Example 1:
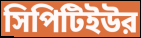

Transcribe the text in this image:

সিপিটিইউর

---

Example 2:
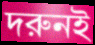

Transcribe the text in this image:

দরুনই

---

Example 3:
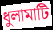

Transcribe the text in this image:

ধুলামাটি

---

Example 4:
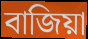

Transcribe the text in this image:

বাজিয়া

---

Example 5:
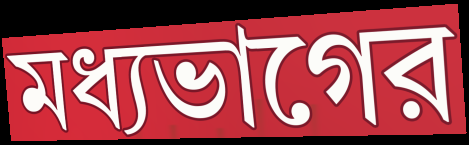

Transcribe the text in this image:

মধ্যভাগের